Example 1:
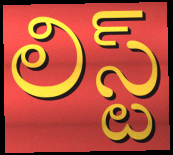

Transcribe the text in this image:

లిస్ట్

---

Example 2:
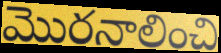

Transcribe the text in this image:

మొరనాలించి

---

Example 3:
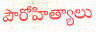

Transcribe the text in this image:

పౌరోహిత్యాలు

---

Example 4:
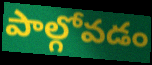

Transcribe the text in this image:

పాల్గోవడం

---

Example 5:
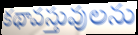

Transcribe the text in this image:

కథావస్తువులను